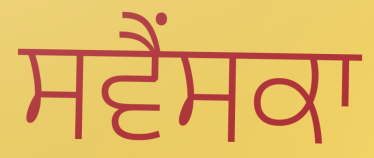
ਸਵੈਂਸਕਾ